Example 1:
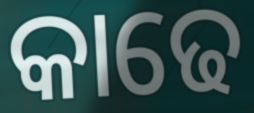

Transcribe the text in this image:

କାଢେ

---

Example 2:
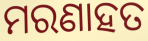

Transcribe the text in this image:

ମରଣାହତ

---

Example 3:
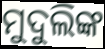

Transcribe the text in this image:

ମୁଦୁଲିଙ୍କ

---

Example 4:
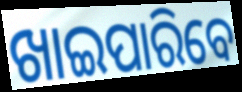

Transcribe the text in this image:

ଖାଇପାରିବେ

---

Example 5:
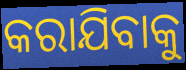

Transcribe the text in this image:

କରାଯିବାକୁ